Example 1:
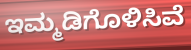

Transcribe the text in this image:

ಇಮ್ಮಡಿಗೊಳಿಸಿವೆ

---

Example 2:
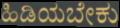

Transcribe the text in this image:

ಹಿಡಿಯಬೇಕು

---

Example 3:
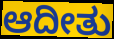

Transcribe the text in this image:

ಆದೀತು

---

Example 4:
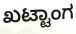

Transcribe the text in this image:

ಖಟ್ಟಾಂಗ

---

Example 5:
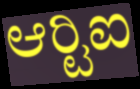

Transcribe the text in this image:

ಆರ್‍ಟಿಐ